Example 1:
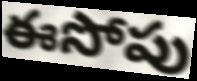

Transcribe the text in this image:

ఈసోపు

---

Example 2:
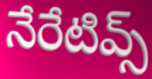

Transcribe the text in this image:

నేరేటివ్స్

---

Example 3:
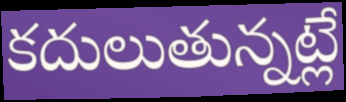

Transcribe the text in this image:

కదులుతున్నట్లే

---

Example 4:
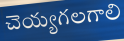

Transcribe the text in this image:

చెయ్యగలగాలి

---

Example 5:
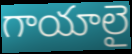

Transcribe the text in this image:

గాయాలై